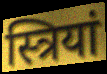
स्त्रियां